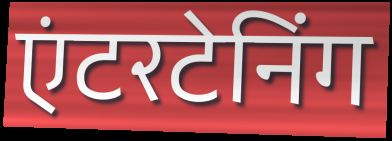
एंटरटेनिंग